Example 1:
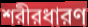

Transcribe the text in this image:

শরীরধারণ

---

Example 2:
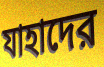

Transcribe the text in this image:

যাহাদের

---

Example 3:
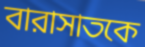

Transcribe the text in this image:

বারাসাতকে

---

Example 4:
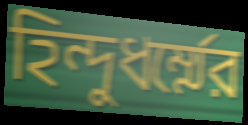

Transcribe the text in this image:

হিন্দুধর্ম্মের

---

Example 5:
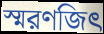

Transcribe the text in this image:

স্মরণজিৎ